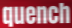
quench